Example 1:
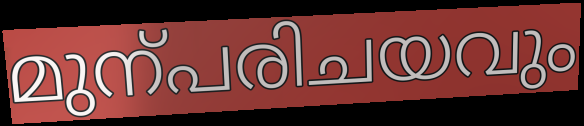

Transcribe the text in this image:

മുന്പരിചയവും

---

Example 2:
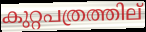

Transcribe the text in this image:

കുറ്റപത്രത്തില്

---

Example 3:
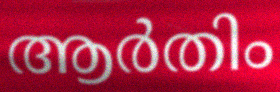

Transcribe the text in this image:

ആർതിം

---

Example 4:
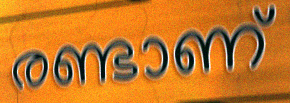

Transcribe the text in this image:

രണ്ടാണ്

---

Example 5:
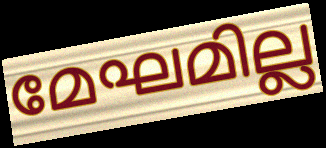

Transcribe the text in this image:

മേഘമില്ല